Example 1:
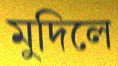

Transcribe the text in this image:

মুদিলে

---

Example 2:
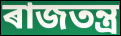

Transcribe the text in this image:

ৰাজতন্ত্ৰ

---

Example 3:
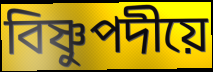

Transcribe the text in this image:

বিষ্ণুপদীয়ে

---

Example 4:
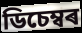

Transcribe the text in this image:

ডিচেম্বৰ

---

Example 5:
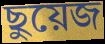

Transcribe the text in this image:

ছুয়েজ